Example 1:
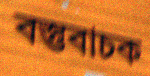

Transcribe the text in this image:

বস্তুবাচক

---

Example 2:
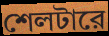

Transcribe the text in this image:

শেলটারে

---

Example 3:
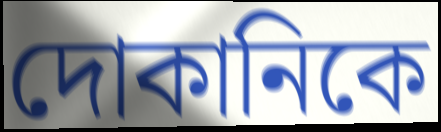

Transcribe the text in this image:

দোকানিকে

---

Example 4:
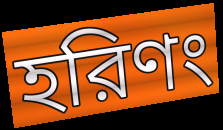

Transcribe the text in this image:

হরিণং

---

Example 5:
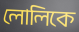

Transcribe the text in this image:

লোলিকে